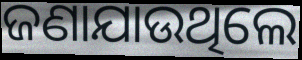
ଜଣାଯାଉଥିଲେ